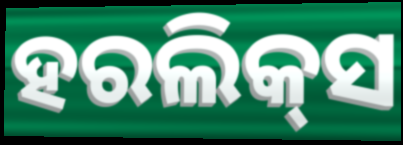
ହରଲିକ୍‌ସ